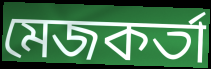
মেজকর্তা